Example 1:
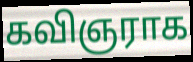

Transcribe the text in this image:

கவிஞராக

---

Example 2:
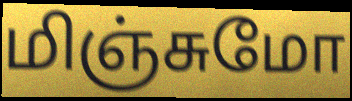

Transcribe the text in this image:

மிஞ்சுமோ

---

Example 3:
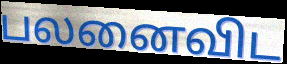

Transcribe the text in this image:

பலனைவிட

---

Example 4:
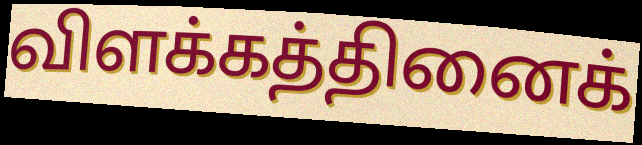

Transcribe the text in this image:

விளக்கத்தினைக்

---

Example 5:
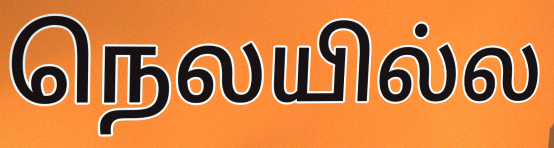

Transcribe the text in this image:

நெலயில்ல